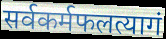
सर्वकर्मफलत्यागं